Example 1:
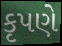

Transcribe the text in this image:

કૃપણે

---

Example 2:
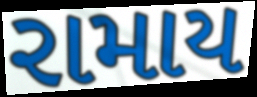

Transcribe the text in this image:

રામાય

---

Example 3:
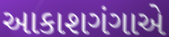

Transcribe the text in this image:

આકાશગંગાએ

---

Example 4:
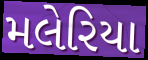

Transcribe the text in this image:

મલેરિયા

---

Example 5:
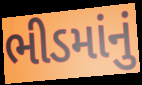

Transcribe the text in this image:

ભીડમાંનું